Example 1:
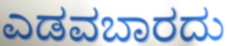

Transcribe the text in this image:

ಎಡವಬಾರದು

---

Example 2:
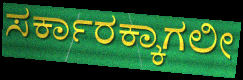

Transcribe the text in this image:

ಸರ್ಕಾರಕ್ಕಾಗಲೀ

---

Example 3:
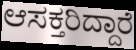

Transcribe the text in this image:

ಆಸಕ್ತರಿದ್ದಾರೆ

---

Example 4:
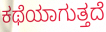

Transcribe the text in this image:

ಕಥೆಯಾಗುತ್ತದೆ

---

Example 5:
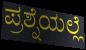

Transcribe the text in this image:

ಪ್ರಶ್ನೆಯಲ್ಲೆ